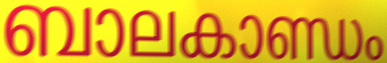
ബാലകാണ്ഡം